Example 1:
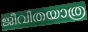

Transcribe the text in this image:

ജീവിതയാത്ര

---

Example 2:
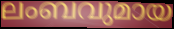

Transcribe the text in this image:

ലംബവുമായ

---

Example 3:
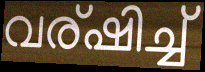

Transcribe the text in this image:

വര്ഷിച്ച്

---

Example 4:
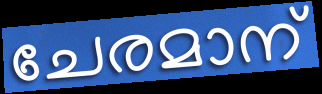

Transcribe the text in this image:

ചേരമാന്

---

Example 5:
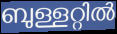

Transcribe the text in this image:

ബുള്ളറ്റിൽ